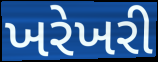
ખરેખરી